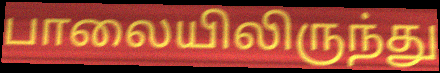
பாலையிலிருந்து